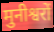
मुनीश्वरों